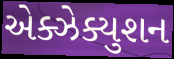
એક્ઝેક્યુશન